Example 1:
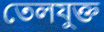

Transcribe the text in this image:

তেলযুক্ত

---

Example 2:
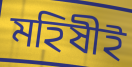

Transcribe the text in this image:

মহিষীই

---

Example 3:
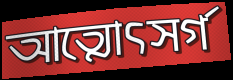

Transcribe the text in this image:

আত্মোৎসর্গ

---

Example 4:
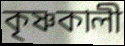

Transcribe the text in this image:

কৃষ্ণকালী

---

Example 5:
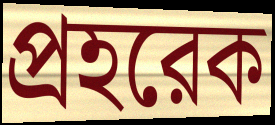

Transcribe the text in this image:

প্রহরেক